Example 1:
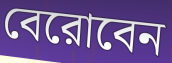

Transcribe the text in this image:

বেরোবেন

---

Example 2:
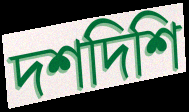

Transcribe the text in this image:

দশদিশি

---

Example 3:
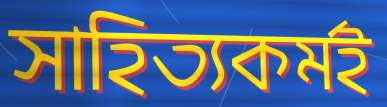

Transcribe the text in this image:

সাহিত্যকর্মই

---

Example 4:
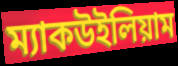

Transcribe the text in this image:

ম্যাকউইলিয়াম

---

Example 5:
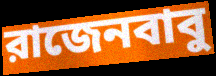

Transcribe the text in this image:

রাজেনবাবু